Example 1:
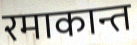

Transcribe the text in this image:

रमाकान्त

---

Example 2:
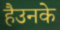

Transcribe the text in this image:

हैउनके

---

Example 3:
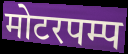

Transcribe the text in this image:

मोटरपम्प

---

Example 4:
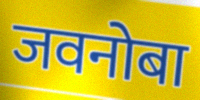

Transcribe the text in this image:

जवनोबा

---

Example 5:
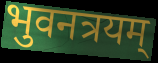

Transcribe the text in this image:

भुवनत्रयम्